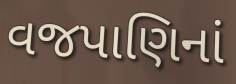
વજપાણિનાં